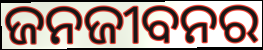
ଜନଜୀବନର